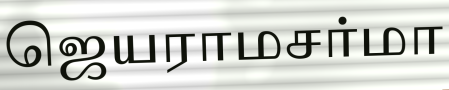
ஜெயராமசர்மா